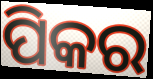
ପିକର